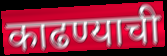
काढण्याची